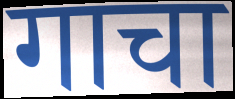
गाचा